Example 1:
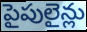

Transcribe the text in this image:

పైపులైన్లు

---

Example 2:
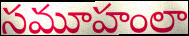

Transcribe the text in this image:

సమూహంలా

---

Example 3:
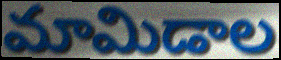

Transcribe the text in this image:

మామిడాల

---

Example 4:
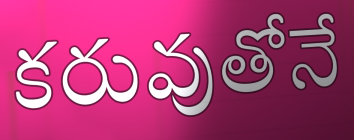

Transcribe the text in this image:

కరువుతోనే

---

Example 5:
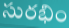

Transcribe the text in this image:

సురభిం